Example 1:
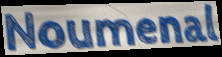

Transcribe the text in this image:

Noumenal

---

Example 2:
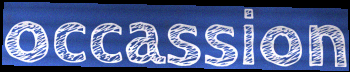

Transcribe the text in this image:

occassion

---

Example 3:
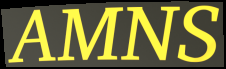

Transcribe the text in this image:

AMNS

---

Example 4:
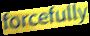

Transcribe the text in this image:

forcefully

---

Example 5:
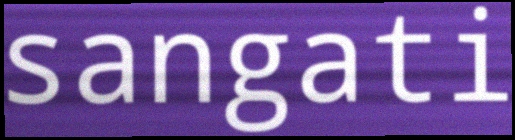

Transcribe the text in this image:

sangati